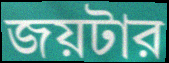
জয়টার